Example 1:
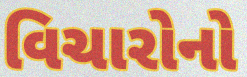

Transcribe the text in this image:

વિચારોનો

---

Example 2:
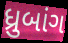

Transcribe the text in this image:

ધ્રુબાંગ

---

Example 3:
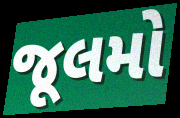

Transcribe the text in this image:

જૂલમો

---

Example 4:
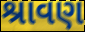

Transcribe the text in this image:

શ્રાવણ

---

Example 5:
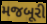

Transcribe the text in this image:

મજબૂરી